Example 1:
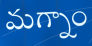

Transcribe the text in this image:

మగ్నాం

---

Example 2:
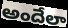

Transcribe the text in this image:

అందేలా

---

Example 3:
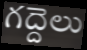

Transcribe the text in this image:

గద్దెలు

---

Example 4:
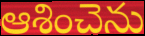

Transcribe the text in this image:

ఆశించెను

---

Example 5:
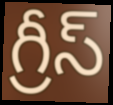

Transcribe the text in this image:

గ్రీస్